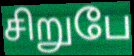
சிறுபே